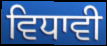
ਵਿਧਾਵੀ